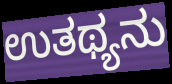
ಉತಥ್ಯನು